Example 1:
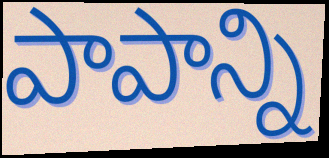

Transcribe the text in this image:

పాపాన్ని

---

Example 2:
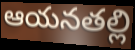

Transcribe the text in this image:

ఆయనతల్లి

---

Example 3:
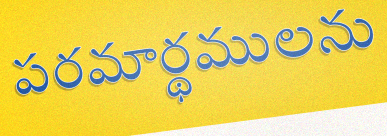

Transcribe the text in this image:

పరమార్థములను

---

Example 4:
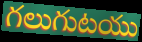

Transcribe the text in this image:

గలుగుటయు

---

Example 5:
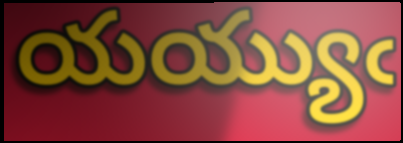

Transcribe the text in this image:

యయ్యుఁ